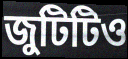
জুটিটিও